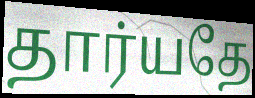
தார்யதே